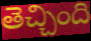
తెచ్చింది